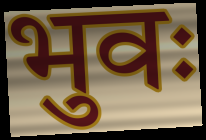
भुवः